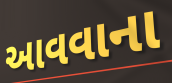
આવવાના